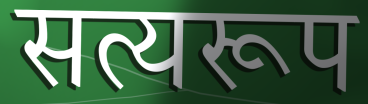
सत्यरूप